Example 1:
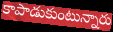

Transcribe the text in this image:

కాపాడుకుంటున్నారు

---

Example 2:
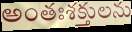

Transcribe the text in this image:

అంతఃశక్తులను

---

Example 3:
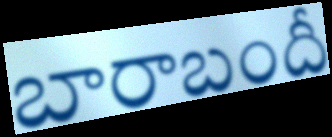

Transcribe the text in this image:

బారాబందీ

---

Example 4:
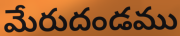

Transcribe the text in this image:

మేరుదండము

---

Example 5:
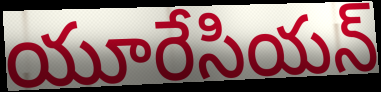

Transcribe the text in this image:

యూరేసియన్